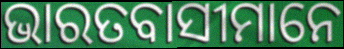
ଭାରତବାସୀମାନେ